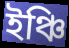
ইঞ্চি